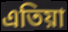
এতিয়া